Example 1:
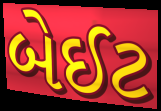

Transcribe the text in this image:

બેઈટ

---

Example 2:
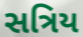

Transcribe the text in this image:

સત્રિય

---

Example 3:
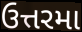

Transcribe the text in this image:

ઉત્તરમા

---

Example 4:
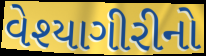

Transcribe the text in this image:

વેશ્યાગીરીનો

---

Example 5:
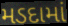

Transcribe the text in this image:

મડદામાં